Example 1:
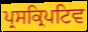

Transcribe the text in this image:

ਪ੍ਰਸਕ੍ਰਿਪਟਿਵ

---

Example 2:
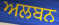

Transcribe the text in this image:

ਅਲਬਨ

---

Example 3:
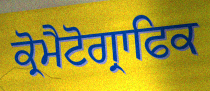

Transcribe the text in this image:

ਕ੍ਰੋਮੈਟੋਗ੍ਰਾਫਿਕ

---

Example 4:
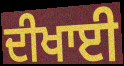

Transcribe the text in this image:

ਦੀਖਾਈ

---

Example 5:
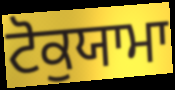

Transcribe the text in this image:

ਟੋਕੁਯਾਮਾ